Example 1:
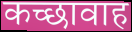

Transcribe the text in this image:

कच्छावाह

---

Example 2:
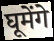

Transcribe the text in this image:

घूमेंगे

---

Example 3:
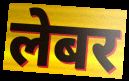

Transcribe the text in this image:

लेबर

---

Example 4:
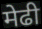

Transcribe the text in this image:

मेढी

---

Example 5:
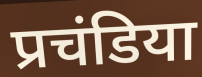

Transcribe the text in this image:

प्रचंडिया